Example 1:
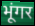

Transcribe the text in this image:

भूंगर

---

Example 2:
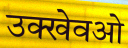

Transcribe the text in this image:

उक्खेवओ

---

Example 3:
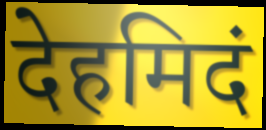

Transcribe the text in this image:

देहमिदं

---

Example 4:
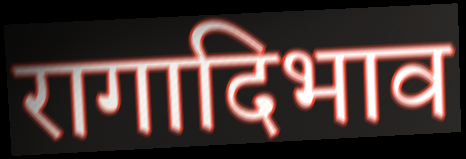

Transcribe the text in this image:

रागादिभाव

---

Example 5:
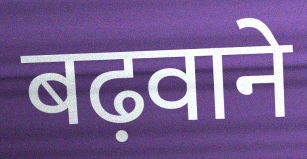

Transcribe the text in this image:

बढ़वाने